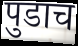
पुडाच